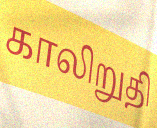
காலிறுதி